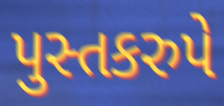
પુસ્તકરુપે